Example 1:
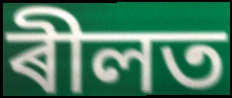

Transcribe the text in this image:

ৰীলত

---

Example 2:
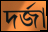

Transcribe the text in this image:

দৰ্জা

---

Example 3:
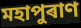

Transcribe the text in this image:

মহাপুৰাণ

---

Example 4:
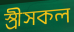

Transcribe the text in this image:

স্ত্ৰীসকল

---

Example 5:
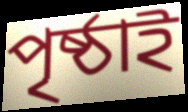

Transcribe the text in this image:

পৃষ্ঠাই